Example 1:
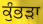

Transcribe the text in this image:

ਕੁੰਭੜਾ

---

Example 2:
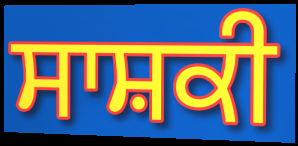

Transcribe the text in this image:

ਸਾਸ਼ਕੀ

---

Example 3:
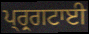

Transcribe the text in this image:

ਪ੍ਰ੍ਰਗਟਾਈ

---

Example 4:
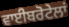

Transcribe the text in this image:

ਵਾਈਬਰੋਟੇਲਾਂ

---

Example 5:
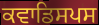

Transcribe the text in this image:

ਕਵਾਡਿਸਪਸ